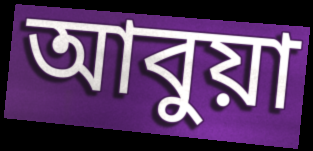
আবুয়া